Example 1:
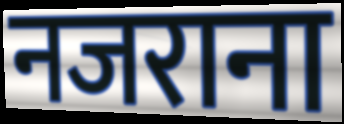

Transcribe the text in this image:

नजराना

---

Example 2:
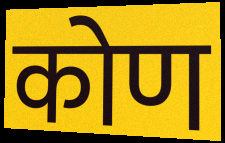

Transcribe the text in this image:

कोण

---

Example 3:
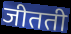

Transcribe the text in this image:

जीतती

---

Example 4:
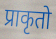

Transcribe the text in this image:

प्राकृतो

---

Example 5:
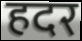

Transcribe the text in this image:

हदर